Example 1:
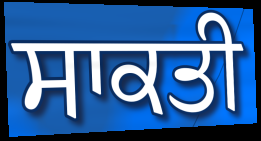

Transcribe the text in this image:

ਸਾਕਤੀ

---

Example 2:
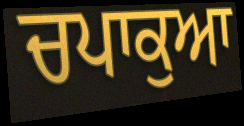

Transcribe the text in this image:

ਚਪਾਕੁਆ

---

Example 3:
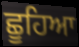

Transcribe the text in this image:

ਛੂਹਿਆ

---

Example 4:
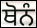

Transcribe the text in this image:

ਥੋਨੰ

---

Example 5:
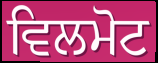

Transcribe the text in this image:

ਵਿਲਮੋਟ